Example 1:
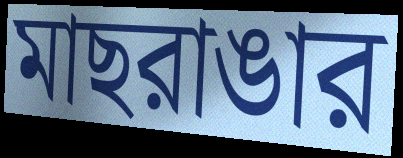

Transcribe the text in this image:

মাছরাঙার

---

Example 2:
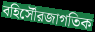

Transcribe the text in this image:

বহির্সৌরজাগতিক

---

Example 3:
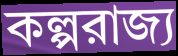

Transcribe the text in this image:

কল্পরাজ্য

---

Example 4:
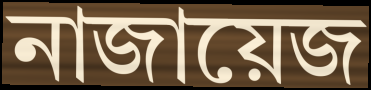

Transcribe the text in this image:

নাজায়েজ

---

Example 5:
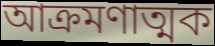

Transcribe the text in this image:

আক্রমণাত্মক